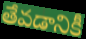
తేవడానికీ